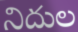
నిదుల